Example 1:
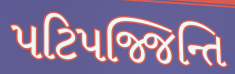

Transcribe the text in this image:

પટિપજ્જિન્તિ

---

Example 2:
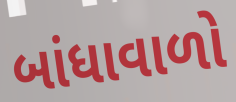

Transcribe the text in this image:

બાંધાવાળો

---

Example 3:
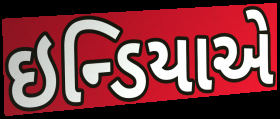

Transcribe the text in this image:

ઇન્ડિયાએ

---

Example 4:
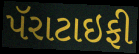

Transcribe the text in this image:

પૅરાટાઇફી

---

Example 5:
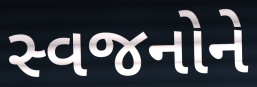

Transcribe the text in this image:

સ્વજનોને